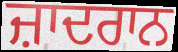
ਜ਼ਾਦਰਾਨ